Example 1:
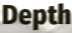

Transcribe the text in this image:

Depth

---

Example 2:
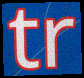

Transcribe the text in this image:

tr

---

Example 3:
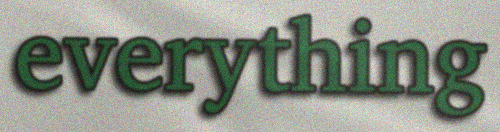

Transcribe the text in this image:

everything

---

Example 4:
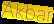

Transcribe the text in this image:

Akbar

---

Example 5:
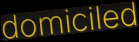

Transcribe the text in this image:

domiciled